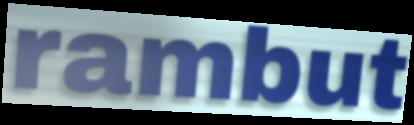
rambut